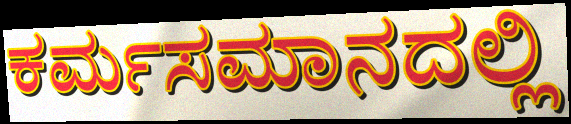
ಕರ್ಮಸಮಾನದಲ್ಲಿ